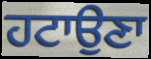
ਹਟਾਉਣਾ